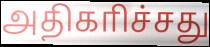
அதிகரிச்சது